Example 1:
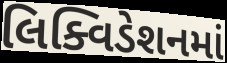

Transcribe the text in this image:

લિક્વિડેશનમાં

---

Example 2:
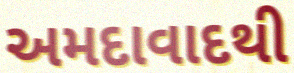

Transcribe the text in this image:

અમદાવાદથી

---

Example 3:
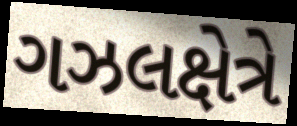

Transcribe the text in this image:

ગઝલક્ષેત્રે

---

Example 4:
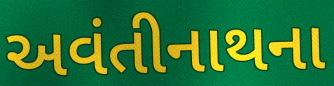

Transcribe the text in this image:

અવંતીનાથના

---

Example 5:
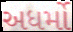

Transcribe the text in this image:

અધર્મો